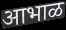
आभाळ